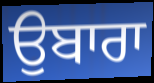
ਉਬਾਰਾ